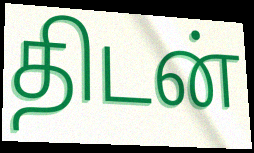
திடன்